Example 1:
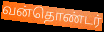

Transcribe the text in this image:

வன்தொண்டர்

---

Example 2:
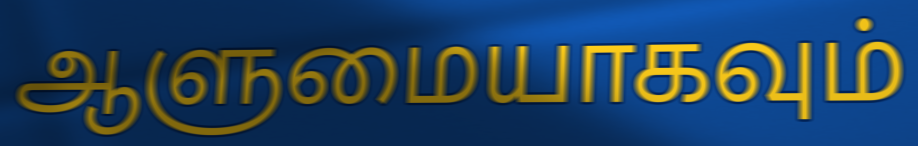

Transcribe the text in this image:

ஆளுமையாகவும்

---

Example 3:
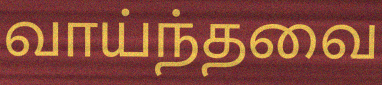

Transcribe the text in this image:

வாய்ந்தவை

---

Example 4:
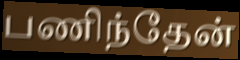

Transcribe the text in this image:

பணிந்தேன்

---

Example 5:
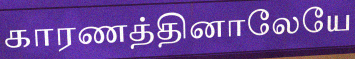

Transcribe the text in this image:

காரணத்தினாலேயே